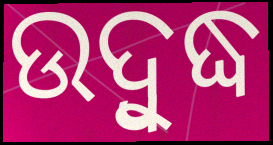
ଉଦ୍ୱୁଦ୍ଧ